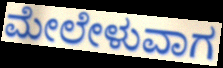
ಮೇಲೇಳುವಾಗ